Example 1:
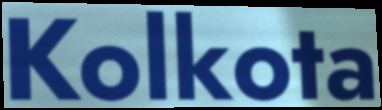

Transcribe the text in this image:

Kolkota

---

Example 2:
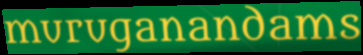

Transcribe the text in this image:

muruganandams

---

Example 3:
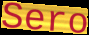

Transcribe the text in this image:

Sero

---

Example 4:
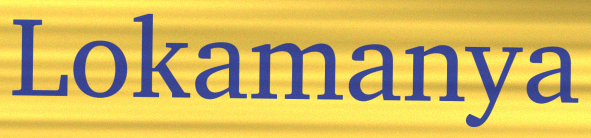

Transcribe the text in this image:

Lokamanya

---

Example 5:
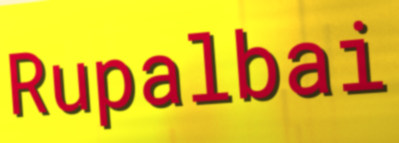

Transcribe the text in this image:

Rupalbai